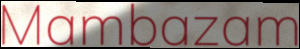
Mambazam